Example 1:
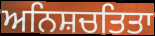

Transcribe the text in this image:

ਅਨਿਸ਼ਚਤਿਤਾ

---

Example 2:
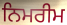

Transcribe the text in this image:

ਨਿਮਰੀਮ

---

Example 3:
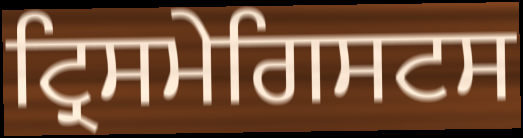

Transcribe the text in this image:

ਟ੍ਰਿਸਮੇਗਿਸਟਸ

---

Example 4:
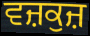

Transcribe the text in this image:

ਵਜ਼ਕੁਜ਼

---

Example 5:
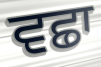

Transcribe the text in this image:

ਵਛਾ